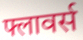
फ्लावर्स